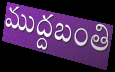
ముద్దబంతి